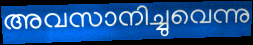
അവസാനിച്ചുവെന്നു